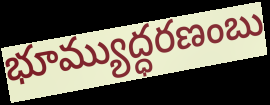
భూమ్యుద్ధరణంబు